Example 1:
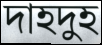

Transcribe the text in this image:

দাহদুহ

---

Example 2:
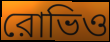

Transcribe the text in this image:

রোভিও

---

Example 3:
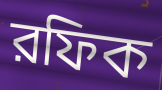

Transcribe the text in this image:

রফিক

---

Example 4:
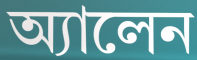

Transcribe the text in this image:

অ্যালেন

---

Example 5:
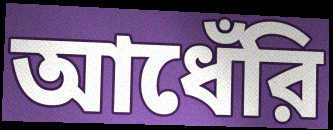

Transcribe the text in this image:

আধেঁরি